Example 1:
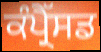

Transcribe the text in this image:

ਕੰਪ੍ਰੈੱਸਡ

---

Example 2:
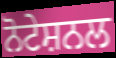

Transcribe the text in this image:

ਨੋਟੇਸ਼ਨਲ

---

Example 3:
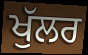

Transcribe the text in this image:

ਖੁੱਲਰ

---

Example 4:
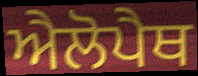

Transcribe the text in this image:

ਐਲੋਪੈਥ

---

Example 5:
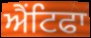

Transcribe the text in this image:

ਐਂਟਿਫਾ